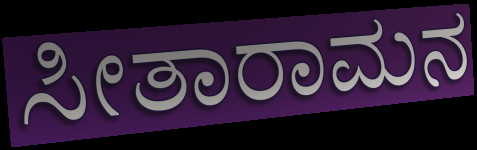
ಸೀತಾರಾಮನ